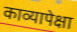
काव्यापेक्षा